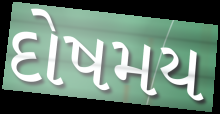
દોષમય